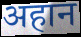
अहान